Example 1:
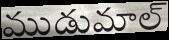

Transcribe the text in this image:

ముడుమాల్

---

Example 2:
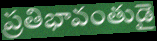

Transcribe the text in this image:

ప్రతిభావంతుడై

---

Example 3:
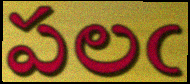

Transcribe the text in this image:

పలఁ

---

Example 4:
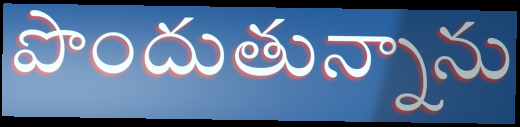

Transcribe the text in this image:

పొందుతున్నాను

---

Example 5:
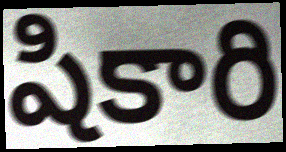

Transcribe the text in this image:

షికారి